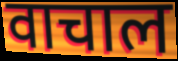
वाचाल